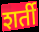
शर्ती